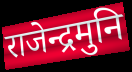
राजेन्द्रमुनि